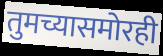
तुमच्यासमोरही